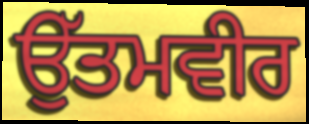
ਉੱਤਮਵੀਰ